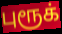
புரூக்